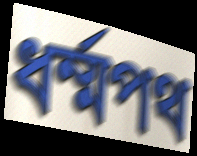
ধর্ম্মপথ